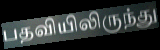
பதவியிலிருந்து